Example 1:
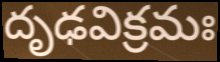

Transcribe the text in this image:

దృఢవిక్రమః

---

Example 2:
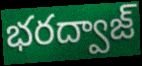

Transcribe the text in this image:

భరద్వాజ్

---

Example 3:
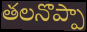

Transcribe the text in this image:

తలనొప్పా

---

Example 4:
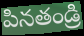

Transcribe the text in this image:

పినతండ్రి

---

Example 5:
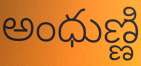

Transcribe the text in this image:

అంధుణ్ణి